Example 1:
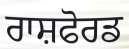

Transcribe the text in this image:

ਰਾਸ਼ਫੋਰਡ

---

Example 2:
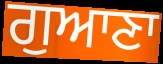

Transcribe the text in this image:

ਗੁਆਣਾ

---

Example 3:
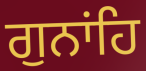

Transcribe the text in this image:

ਗੁਨਾਂਹਿ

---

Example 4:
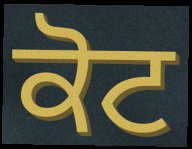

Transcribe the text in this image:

ਕੋਟ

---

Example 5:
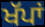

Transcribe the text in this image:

ਖੱਪਾਂ